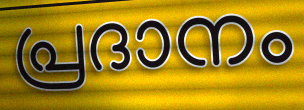
പ്രദാനം